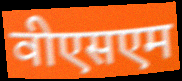
वीएसएम